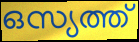
ഒസ്യത്ത്